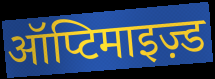
ऑप्टिमाइज़्ड